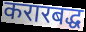
करारबद्ध